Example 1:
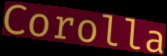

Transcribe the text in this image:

Corolla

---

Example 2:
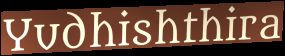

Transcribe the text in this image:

Yudhishthira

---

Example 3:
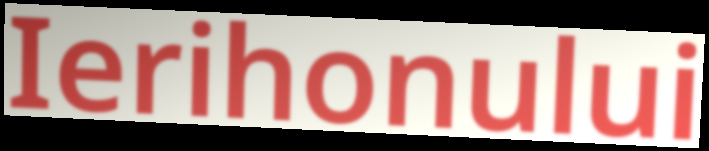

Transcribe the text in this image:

Ierihonului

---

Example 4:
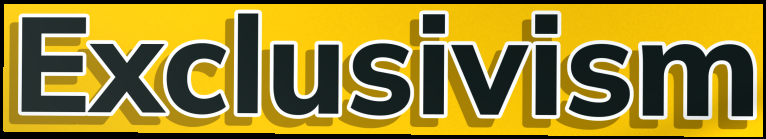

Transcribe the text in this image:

Exclusivism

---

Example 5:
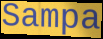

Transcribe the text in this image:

Sampa